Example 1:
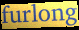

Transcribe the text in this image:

furlong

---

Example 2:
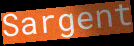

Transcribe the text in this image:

Sargent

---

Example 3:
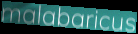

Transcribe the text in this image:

malabaricus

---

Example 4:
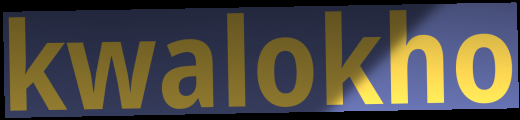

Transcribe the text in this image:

kwalokho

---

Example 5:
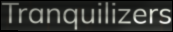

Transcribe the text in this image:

Tranquilizers